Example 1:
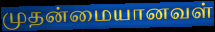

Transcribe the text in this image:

முதன்மையானவள்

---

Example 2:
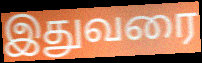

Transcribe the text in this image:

இதுவரை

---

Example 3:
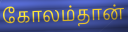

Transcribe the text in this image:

கோலம்தான்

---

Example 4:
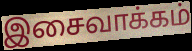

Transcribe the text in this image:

இசைவாக்கம்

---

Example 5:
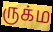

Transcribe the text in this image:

ருக்ம